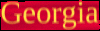
Georgia